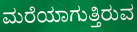
ಮರೆಯಾಗುತ್ತಿರುವ